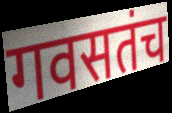
गवसतंच